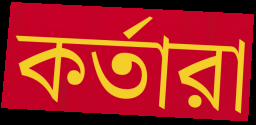
কর্তারা